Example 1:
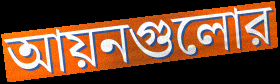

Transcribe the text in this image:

আয়নগুলোর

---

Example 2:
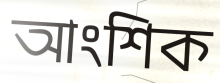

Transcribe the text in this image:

আংশিক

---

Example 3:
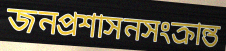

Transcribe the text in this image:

জনপ্রশাসনসংক্রান্ত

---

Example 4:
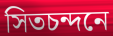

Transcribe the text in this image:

সিতচন্দনে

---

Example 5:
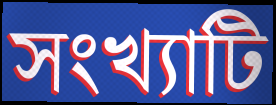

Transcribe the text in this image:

সংখ্যাটি